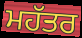
ਮਹੱਤਰ